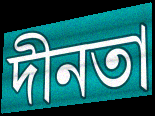
দীনতা